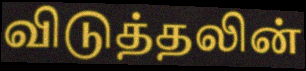
விடுத்தலின்